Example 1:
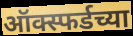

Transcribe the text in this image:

ऑक्स्फर्डच्या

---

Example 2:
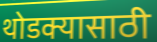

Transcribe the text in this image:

थोडक्यासाठी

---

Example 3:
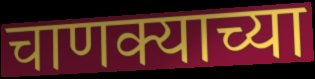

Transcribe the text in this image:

चाणक्याच्या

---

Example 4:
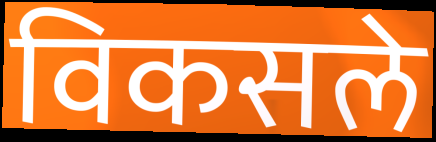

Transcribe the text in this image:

विकसले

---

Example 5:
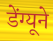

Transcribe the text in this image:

डेंग्यूने